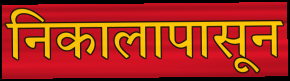
निकालापासून